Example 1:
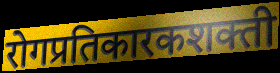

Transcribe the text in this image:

रोगप्रतिकारकशक्ती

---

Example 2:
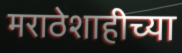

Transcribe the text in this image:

मराठेशाहीच्या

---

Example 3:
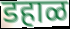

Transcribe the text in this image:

डहाळ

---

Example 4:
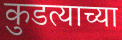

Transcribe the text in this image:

कुडत्याच्या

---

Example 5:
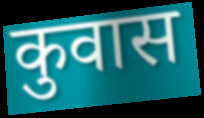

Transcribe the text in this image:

कुवास